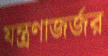
যন্ত্রণাজর্জর